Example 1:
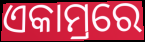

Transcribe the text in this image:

ଏକାମ୍ରରେ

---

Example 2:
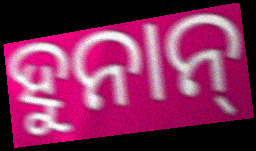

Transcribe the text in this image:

ହୁନାନ୍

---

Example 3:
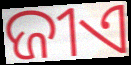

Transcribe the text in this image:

ଜୀଏ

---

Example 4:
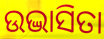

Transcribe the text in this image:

ଉଦ୍ଭାସିତା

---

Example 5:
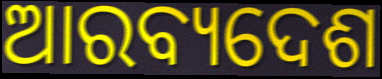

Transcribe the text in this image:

ଆରବ୍ୟଦେଶ